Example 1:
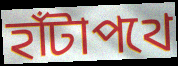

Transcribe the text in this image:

হাঁটাপথে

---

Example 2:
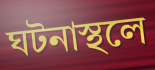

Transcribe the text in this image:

ঘটনাস্থলে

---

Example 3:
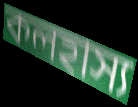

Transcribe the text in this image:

কলহাস্য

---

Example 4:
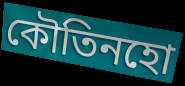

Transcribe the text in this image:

কৌতিনহো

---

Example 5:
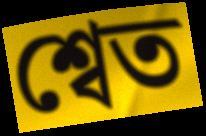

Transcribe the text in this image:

শ্বেত